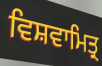
ਵਿਸ਼ਵਾਮਿਤ੍ਰ